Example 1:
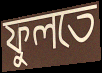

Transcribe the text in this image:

ফুলতে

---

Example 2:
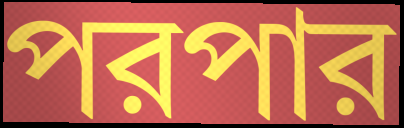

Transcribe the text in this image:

পরপার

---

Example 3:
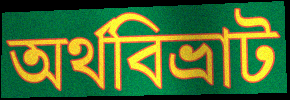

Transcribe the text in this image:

অর্থবিভ্রাট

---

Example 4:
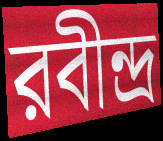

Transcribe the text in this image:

রবীন্দ্র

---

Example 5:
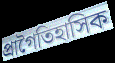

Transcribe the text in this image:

প্রাগৈতিহাসিক